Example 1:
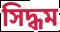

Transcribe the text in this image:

সিদ্ধম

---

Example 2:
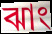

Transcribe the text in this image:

ঝাং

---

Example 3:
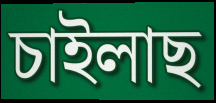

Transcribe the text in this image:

চাইলাছ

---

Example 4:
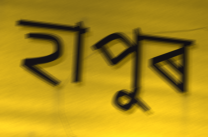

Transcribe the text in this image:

হাপুৰ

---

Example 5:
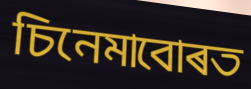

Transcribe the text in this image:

চিনেমাবোৰত